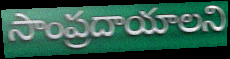
సాంప్రదాయాలని